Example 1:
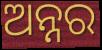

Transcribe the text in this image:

ଅନ୍ନର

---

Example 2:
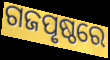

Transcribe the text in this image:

ଗଜପୃଷ୍ଠରେ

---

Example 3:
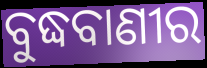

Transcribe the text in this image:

ବୁଦ୍ଧବାଣୀର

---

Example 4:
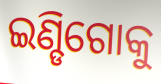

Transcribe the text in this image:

ଇଣ୍ଡିଗୋକୁ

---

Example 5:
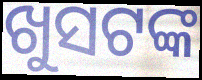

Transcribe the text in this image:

ଖୁସଟଙ୍କ